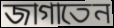
জাগাতেন